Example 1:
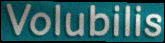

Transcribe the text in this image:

Volubilis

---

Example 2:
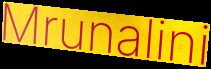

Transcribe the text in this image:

Mrunalini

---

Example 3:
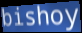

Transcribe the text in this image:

bishoy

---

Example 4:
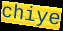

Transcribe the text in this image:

chiye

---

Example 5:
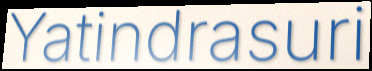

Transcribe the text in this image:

Yatindrasuri